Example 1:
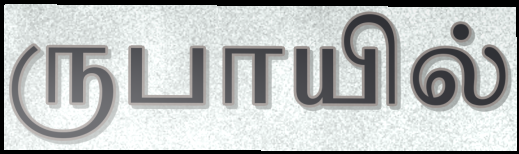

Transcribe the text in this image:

ருபாயில்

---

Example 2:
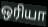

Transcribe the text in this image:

ஒரியா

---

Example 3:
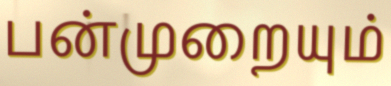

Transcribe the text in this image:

பன்முறையும்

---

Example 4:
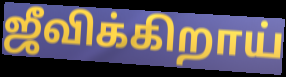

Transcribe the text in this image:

ஜீவிக்கிறாய்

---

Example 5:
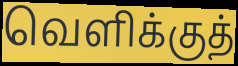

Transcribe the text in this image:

வெளிக்குத்